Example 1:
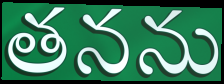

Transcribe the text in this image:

తనను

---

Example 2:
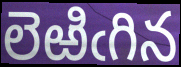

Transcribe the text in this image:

లెఱిఁగిన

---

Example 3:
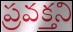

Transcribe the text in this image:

ప్రవక్తని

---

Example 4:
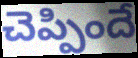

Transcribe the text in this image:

చెప్పిందే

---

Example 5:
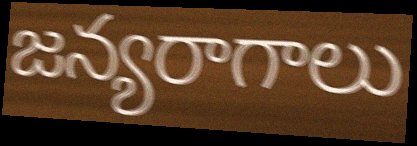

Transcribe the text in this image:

జన్యరాగాలు